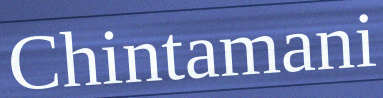
Chintamani